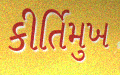
કીર્તિમુખ